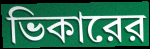
ভিকারের